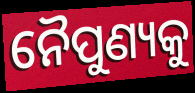
ନୈପୁଣ୍ୟକୁ